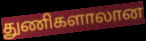
துணிகளாலான